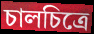
চালচিত্রে